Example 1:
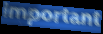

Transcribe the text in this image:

Important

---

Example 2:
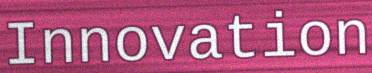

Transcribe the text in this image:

Innovation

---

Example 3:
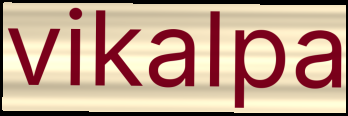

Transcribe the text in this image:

vikalpa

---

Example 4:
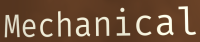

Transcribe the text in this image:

Mechanical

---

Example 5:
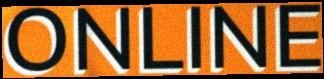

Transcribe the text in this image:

ONLINE